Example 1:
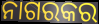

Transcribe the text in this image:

ନାଗରକର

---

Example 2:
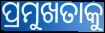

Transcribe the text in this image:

ପ୍ରମୁଖତାକୁ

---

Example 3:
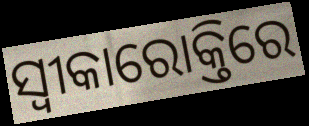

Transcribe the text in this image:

ସ୍ୱୀକାରୋକ୍ତିରେ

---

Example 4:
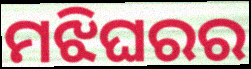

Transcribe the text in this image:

ମଝିଘରର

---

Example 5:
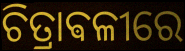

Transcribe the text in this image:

ଚିତ୍ରାଵଳୀରେ